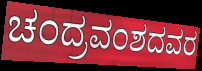
ಚಂದ್ರವಂಶದವರ